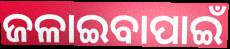
ଜଳାଇବାପାଇଁ